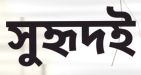
সুহৃদই